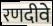
रणदीवे